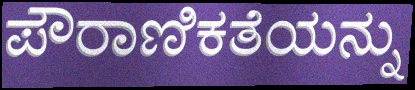
ಪೌರಾಣಿಕತೆಯನ್ನು